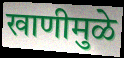
खाणीमुळे